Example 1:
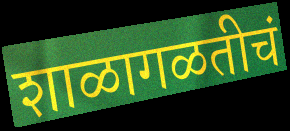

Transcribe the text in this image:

शाळागळतीचं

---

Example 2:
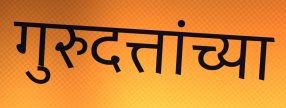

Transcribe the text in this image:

गुरुदत्तांच्या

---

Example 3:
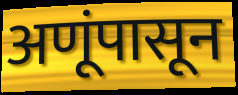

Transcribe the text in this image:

अणूंपासून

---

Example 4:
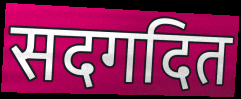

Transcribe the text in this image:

सदगदित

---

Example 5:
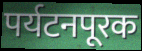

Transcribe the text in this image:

पर्यटनपूरक